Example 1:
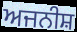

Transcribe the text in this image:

ਅਜਨੀਸ਼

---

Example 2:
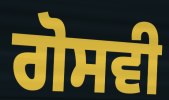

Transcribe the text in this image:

ਗੋਸਵੀ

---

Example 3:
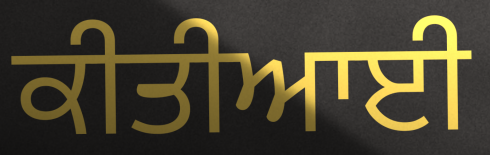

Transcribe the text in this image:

ਕੀਤੀਆਈ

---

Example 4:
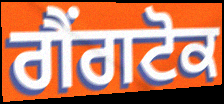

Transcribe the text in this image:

ਗੈਂਗਟੋਕ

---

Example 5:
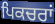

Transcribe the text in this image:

ਪਿਕਚਰਾਂ